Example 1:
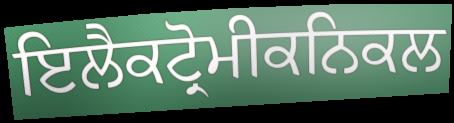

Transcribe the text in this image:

ਇਲੈਕਟ੍ਰੋਮੀਕਨਿਕਲ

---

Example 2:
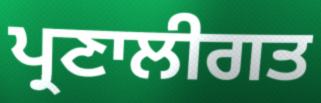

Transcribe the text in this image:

ਪ੍ਰਣਾਲੀਗਤ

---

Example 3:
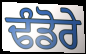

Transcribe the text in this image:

ਢੰਡੋਰੇ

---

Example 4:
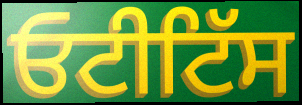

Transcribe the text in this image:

ਓਟੀਟਿੱਸ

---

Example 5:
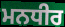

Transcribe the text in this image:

ਮਨਧੀਰ